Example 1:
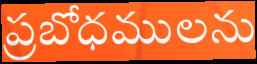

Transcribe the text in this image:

ప్రబోధములను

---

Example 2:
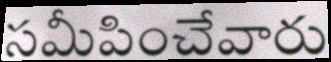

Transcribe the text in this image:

సమీపించేవారు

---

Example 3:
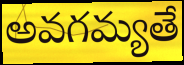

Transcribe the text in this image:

అవగమ్యతే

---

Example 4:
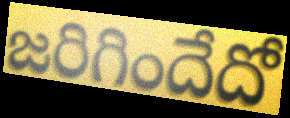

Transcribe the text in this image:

జరిగిందేదో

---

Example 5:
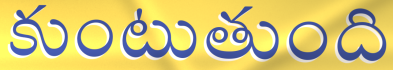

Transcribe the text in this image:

కుంటుతుంది